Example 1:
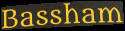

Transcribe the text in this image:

Bassham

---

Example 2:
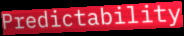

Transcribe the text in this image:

Predictability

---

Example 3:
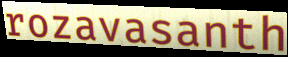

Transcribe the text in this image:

rozavasanth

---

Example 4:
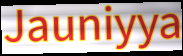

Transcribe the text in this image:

Jauniyya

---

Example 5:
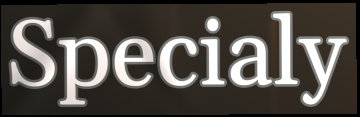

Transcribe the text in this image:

Specialy